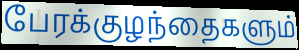
பேரக்குழந்தைகளும்